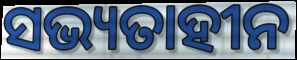
ସଭ୍ୟତାହୀନ